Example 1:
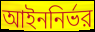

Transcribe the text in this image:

আইননির্ভর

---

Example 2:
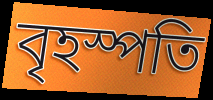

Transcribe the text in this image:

বৃহস্পতি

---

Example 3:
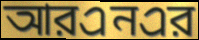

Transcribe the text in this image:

আরএনএর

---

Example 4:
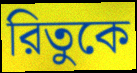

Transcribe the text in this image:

রিতুকে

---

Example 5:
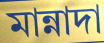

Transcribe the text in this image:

মান্নাদা